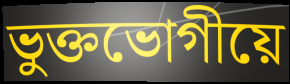
ভুক্তভোগীয়ে